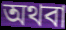
অথবা